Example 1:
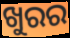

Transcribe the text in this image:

ଖୁରର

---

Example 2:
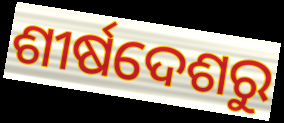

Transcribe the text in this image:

ଶୀର୍ଷଦେଶରୁ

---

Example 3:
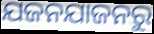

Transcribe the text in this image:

ଯଜନଯାଜନରୁ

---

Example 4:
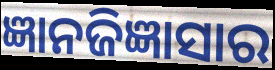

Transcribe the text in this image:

ଜ୍ଞାନଜିଜ୍ଞାସାର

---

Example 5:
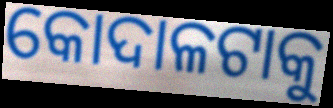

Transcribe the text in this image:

କୋଦାଳଟାକୁ